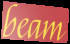
beam